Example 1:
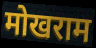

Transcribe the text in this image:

मोखराम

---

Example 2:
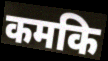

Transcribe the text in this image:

कमकि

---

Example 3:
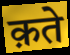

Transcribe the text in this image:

क़ते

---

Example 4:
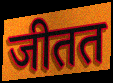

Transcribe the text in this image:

जीतत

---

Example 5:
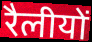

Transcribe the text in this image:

रैलीयों